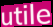
utile